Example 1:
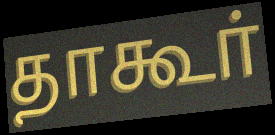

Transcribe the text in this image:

தாகூர்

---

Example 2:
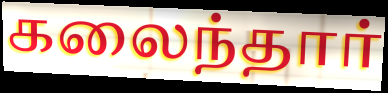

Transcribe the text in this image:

கலைந்தார்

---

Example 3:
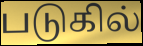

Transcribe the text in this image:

படுகில்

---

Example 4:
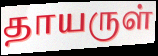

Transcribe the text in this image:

தாயருள்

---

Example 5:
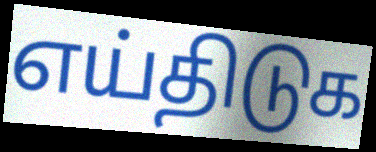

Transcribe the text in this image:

எய்திடுக